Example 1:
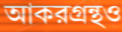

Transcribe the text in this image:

আকরগ্রন্থও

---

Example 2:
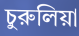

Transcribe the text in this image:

চুরুলিয়া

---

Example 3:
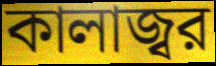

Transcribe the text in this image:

কালাজ্বর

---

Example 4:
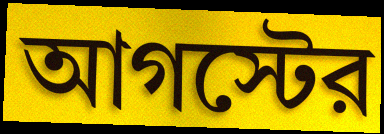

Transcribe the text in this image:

আগস্টের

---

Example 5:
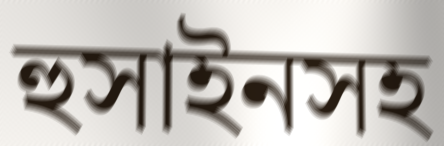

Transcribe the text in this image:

হুসাইনসহ